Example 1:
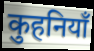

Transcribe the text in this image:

कुहनियाँ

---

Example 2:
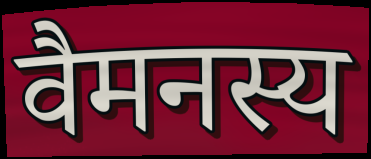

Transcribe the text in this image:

वैमनस्य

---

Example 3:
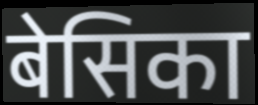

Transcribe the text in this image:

बेसिका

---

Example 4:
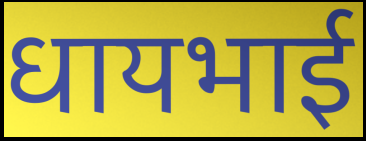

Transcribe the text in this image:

धायभाई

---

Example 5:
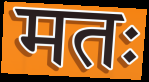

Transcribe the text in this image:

मतः